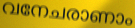
വനേചരാണാം